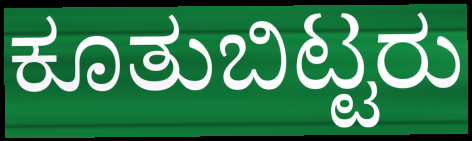
ಕೂತುಬಿಟ್ಟರು